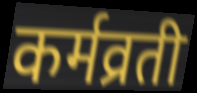
कर्मव्रती